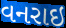
વનરાઇ